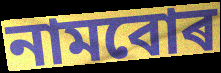
নামবোৰ